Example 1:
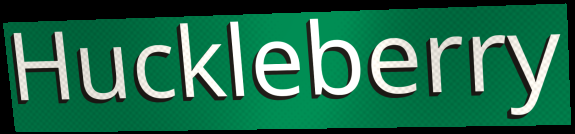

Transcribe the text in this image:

Huckleberry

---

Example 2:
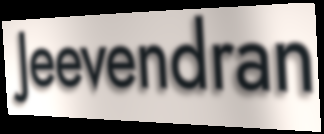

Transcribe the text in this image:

Jeevendran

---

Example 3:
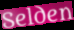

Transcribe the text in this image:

Selden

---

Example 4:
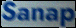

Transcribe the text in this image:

Sanap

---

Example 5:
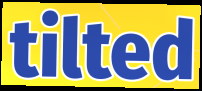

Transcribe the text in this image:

tilted